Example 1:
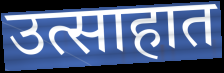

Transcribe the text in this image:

उत्साहात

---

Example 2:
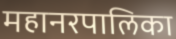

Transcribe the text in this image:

महानरपालिका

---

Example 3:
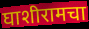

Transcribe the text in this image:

घाशीरामचा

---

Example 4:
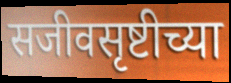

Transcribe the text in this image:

सजीवसृष्टीच्या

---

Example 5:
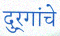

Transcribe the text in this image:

दुर्गांचे